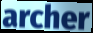
archer